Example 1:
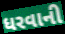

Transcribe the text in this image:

ધરવાની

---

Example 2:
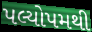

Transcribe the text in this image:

પલ્યોપમથી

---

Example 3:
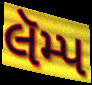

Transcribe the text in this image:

લૅમ્પ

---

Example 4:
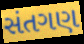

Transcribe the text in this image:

સંતગણ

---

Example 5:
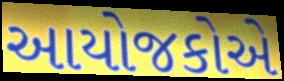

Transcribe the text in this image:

આયોજકોએ